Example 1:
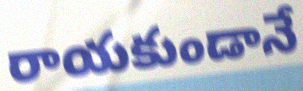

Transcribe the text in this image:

రాయకుండానే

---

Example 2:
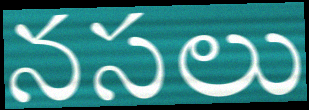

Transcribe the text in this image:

నసలు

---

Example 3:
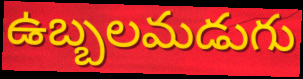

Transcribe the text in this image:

ఉబ్బలమడుగు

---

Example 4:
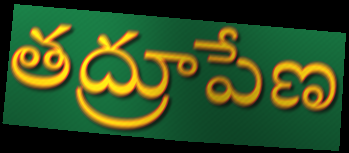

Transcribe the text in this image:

తద్రూపేణ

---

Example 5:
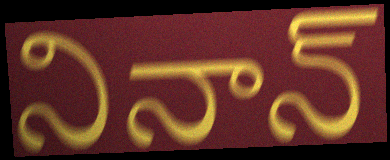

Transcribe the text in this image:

నినాన్